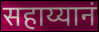
सहाय्यानं